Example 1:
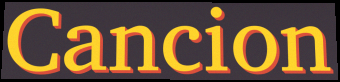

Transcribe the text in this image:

Cancion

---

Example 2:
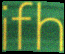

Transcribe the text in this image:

ifh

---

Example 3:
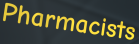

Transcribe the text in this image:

Pharmacists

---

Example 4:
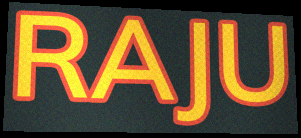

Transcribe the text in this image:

RAJU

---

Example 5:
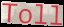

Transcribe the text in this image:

Toll